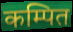
कम्पित